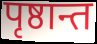
पृष्ठान्त